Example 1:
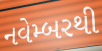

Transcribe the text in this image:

નવેમ્બરથી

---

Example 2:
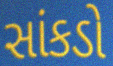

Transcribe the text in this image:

સાંકડો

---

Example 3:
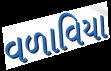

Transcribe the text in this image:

વળાવિયા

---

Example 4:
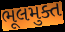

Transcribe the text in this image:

ભૂલમુક્ત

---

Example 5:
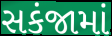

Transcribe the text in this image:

સકંજામાં